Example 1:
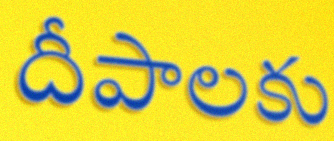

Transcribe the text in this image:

దీపాలకు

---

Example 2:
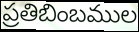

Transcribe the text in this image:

ప్రతిబింబముల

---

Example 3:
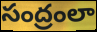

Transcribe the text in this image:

సంద్రంలా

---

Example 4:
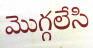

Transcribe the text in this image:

మొగ్గలేసి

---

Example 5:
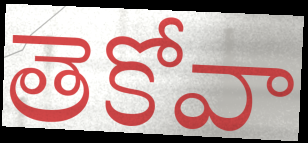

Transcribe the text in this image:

తెకోవా